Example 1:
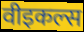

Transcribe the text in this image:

वीइकल्‍स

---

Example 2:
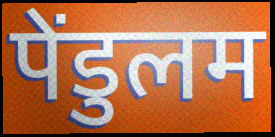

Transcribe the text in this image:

पेंडुलम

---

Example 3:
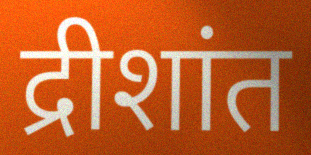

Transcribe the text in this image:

द्रीशांत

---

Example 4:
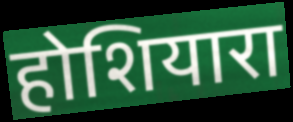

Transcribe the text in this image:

होशियारा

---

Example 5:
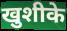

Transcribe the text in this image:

खुशीके